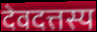
देवदत्तस्य